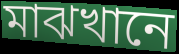
মাঝখানে